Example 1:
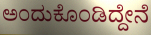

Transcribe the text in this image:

ಅಂದುಕೊಂಡಿದ್ದೇನೆ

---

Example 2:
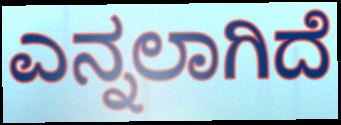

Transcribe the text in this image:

ಎನ್ನಲಾಗಿದೆ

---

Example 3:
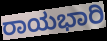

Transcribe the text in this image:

ರಾಯಭಾರಿ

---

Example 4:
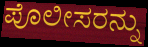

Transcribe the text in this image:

ಪೊಲೀಸರನ್ನು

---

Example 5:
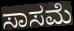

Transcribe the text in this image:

ಸಾಸಮೆ